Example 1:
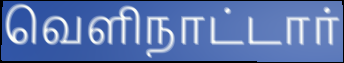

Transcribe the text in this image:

வெளிநாட்டார்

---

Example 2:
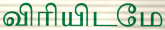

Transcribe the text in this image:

விரியிடமே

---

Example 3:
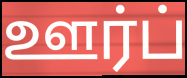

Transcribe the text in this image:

ஊர்ப்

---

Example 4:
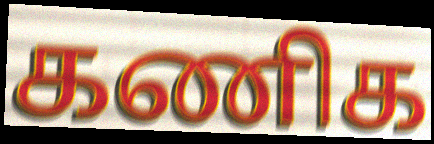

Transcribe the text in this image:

கணிக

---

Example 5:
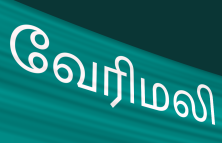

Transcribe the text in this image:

வேரிமலி